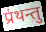
प्र॑थन्तु